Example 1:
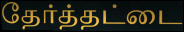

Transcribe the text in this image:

தேர்த்தட்டை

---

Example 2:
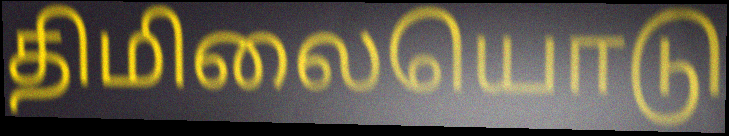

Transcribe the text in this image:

திமிலையொடு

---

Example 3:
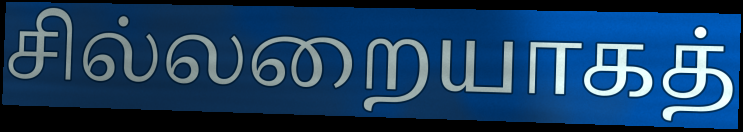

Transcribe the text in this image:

சில்லறையாகத்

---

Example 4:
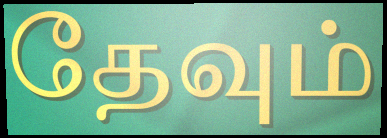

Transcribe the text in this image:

தேவும்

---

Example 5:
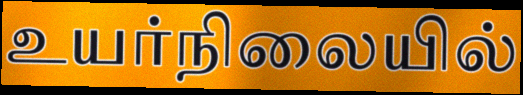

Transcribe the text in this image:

உயர்நிலையில்